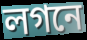
লগনে